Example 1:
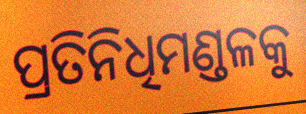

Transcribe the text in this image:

ପ୍ରତିନିଧିମଣ୍ଡଳକୁ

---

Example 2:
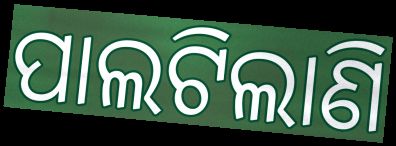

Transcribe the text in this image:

ପାଲଟିଲାଣି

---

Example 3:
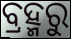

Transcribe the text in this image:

ବ୍ରହ୍ମରୁ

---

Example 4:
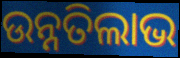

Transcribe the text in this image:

ଉନ୍ନତିଲାଭ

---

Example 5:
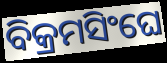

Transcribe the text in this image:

ବିକ୍ରମସିଂଘେ